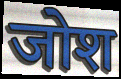
जोश